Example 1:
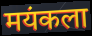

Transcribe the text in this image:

मयंकला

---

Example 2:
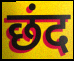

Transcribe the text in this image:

छंद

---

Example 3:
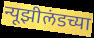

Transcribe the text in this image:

न्यूझीलंडच्या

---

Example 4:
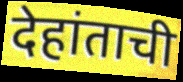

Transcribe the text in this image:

देहांताची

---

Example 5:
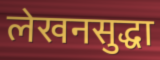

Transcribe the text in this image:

लेखनसुद्धा